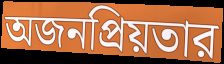
অজনপ্রিয়তার